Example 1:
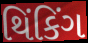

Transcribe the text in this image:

થિંકિંગ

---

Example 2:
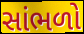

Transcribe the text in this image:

સાંભળો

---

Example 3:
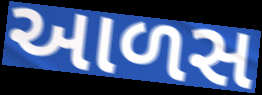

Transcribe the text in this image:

આળસ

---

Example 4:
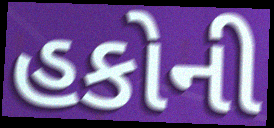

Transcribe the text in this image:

હકોની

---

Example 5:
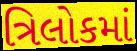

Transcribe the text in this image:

ત્રિલોકમાં